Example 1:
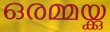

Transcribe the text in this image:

ഒരമ്മയ്ക്കു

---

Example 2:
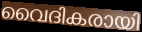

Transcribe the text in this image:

വൈദികരായി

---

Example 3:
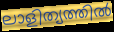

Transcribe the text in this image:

ലാളിത്യത്തിൽ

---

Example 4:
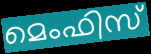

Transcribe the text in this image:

മെംഫിസ്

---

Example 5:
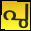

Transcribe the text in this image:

പു